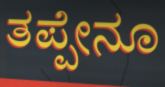
ತಪ್ಪೇನೂ